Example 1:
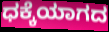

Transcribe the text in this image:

ಧಕ್ಕೆಯಾಗದ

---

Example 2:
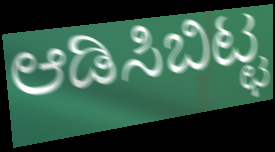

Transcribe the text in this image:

ಆಡಿಸಿಬಿಟ್ಟ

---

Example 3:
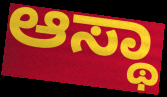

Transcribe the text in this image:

ಆಸ್ಥಾ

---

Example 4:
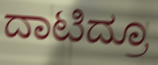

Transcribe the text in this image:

ದಾಟಿದ್ರೂ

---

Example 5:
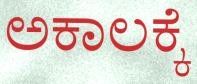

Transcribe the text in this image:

ಅಕಾಲಕ್ಕೆ